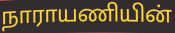
நாராயணியின்